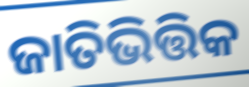
ଜାତିଭିତ୍ତିକ